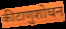
कीटाणुशोधन